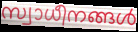
സ്വാധീനങ്ങൾ